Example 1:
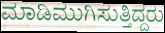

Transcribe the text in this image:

ಮಾಡಿಮುಗಿಸುತ್ತಿದ್ದರು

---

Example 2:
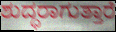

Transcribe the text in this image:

ಶುದ್ಧರಾಗುತ್ತಾರೆ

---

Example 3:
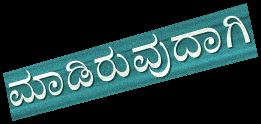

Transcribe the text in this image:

ಮಾಡಿರುವುದಾಗಿ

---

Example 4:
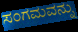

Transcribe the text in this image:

ಸಂಗಮವನ್ನು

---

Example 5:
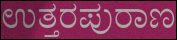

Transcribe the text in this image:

ಉತ್ತರಪುರಾಣ